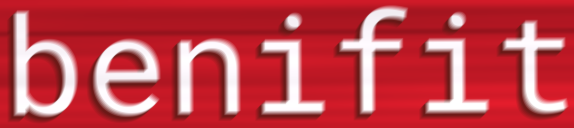
benifit